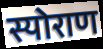
स्योराण